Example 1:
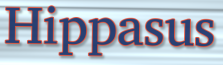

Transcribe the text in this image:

Hippasus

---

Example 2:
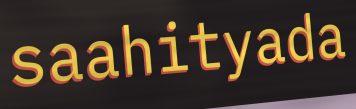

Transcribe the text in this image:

saahityada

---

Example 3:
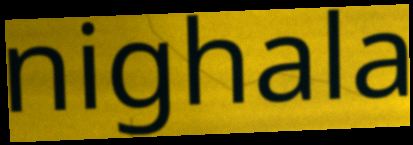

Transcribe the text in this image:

nighala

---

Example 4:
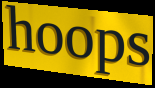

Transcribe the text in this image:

hoops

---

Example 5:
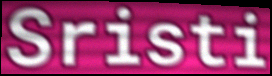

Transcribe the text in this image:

Sristi